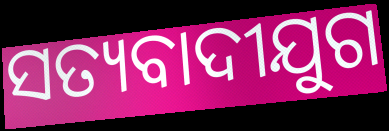
ସତ୍ୟବାଦୀଯୁଗ